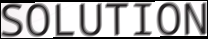
SOLUTION